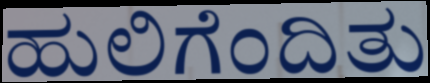
ಹುಲಿಗೆಂದಿತು